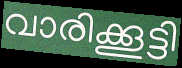
വാരിക്കൂട്ടി